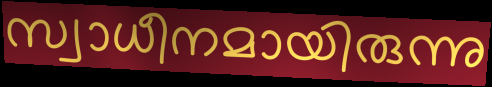
സ്വാധീനമായിരുന്നു